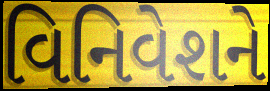
વિનિવેશને